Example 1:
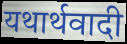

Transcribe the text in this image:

यथार्थवादी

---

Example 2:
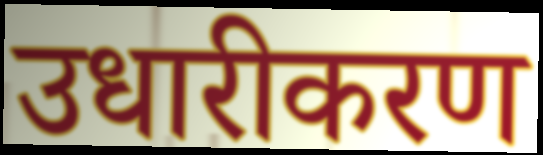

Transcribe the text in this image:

उधारीकरण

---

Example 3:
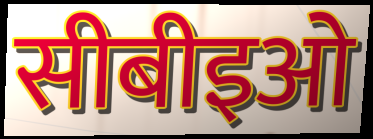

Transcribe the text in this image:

सीबीइओ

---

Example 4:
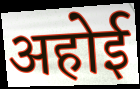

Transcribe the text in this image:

अहोई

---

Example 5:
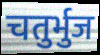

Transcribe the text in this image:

चतुर्भुज